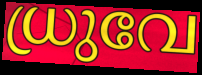
ധ്രുവേ